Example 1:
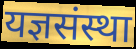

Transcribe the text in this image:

यज्ञसंस्था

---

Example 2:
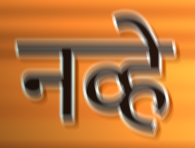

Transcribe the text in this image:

नव्हे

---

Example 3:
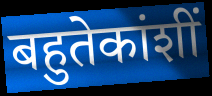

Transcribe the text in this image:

बहुतेकांशीं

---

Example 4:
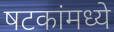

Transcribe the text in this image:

षटकांमध्ये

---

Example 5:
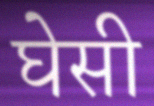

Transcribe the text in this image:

घेसी